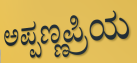
ಅಪ್ಪಣ್ಣಪ್ರಿಯ